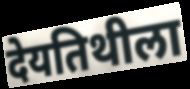
देयतिथीला